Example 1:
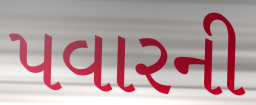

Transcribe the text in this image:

પવારની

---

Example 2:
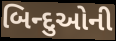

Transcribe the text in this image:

બિન્દુઓની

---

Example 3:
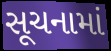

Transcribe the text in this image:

સૂચનામાં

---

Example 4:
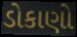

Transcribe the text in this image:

ડોકાણો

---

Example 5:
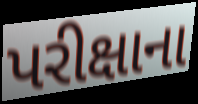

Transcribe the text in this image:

પરીક્ષાના